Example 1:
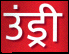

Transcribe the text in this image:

उंड्री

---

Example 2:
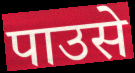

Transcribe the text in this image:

पाउसे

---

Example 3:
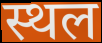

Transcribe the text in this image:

स्‍थल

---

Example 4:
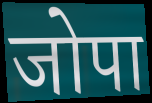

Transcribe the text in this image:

जोपा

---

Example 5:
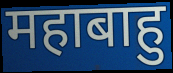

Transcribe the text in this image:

महाबाहु